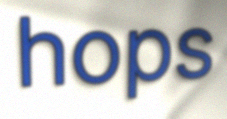
hops